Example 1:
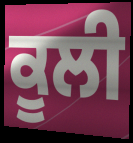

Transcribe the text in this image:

ਕੂਲੀ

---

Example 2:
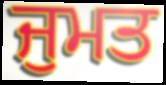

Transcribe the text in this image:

ਜੁਮਤ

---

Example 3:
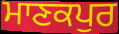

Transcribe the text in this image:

ਮਾਣਕਪੁਰ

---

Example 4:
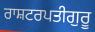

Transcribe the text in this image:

ਰਾਸ਼ਟਰਪਤੀਗੁਰੂ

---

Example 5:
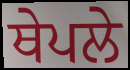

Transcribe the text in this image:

ਥੇਪਲੇ